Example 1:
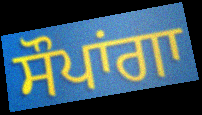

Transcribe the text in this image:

ਸੌਪਾਂਗਾ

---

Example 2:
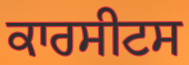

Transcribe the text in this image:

ਕਾਰਸੀਟਸ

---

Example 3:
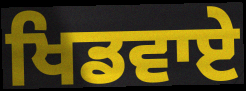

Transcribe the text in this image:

ਖਿਡਵਾਏ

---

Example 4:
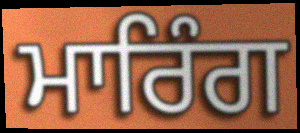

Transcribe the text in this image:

ਮਾਰਿੰਗ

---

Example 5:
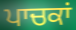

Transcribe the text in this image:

ਪਾਚਕਾਂ